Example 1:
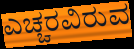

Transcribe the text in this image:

ಎಚ್ಚರವಿರುವ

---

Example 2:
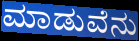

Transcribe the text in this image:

ಮಾಡುವೆನು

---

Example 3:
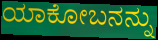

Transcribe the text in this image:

ಯಾಕೋಬನನ್ನು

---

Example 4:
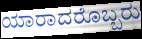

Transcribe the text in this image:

ಯಾರಾದರೊಬ್ಬರು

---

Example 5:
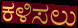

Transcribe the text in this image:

ಕಳಿಸಲು